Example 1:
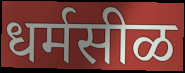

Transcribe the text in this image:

धर्मसीळ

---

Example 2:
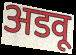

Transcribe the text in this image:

अडवू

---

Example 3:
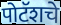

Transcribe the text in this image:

पोटॅशचे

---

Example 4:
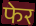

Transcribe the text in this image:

फेर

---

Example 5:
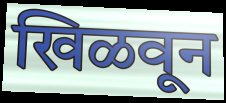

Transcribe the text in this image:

खिळवून